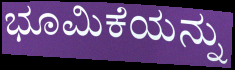
ಭೂಮಿಕೆಯನ್ನು